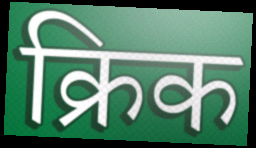
क्रिक